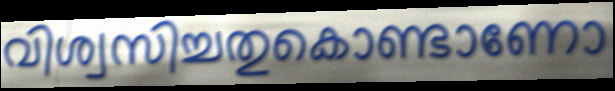
വിശ്വസിച്ചതുകൊണ്ടാണോ